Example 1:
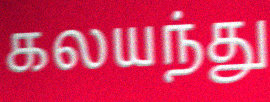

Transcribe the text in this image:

கலயந்து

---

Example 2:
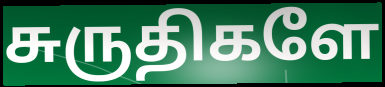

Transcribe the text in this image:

சுருதிகளே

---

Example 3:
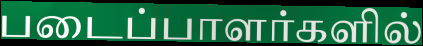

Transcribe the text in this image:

படைப்பாளர்களில்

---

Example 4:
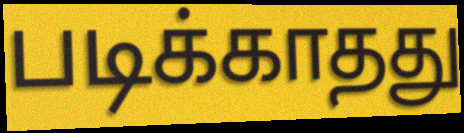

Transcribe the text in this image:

படிக்காதது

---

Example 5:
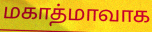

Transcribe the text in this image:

மகாத்மாவாக